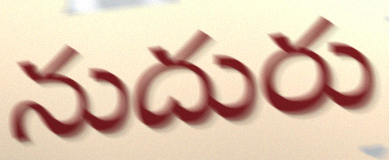
నుదురు